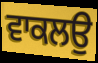
ਵਾਕਲਉ